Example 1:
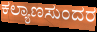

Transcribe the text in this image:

ಕಲ್ಯಾಣಸುಂದರ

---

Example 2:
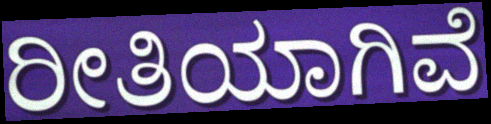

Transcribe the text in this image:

ರೀತಿಯಾಗಿವೆ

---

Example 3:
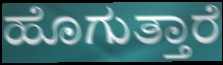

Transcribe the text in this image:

ಹೊಗುತ್ತಾರೆ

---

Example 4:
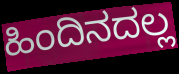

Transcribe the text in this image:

ಹಿಂದಿನದಲ್ಲ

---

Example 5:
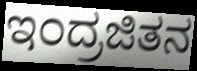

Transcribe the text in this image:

ಇಂದ್ರಜಿತನ